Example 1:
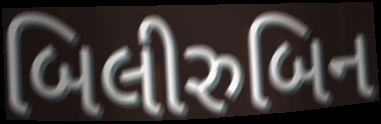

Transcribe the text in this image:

બિલીરુબિન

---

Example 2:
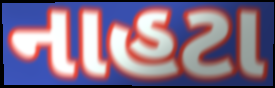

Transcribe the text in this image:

નાહટા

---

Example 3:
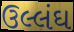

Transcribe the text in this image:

ઉલ્લંઘ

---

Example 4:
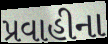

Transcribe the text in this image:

પ્રવાહીના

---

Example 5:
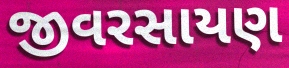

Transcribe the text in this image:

જીવરસાયણ